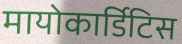
मायोकार्डिटिस